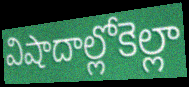
విషాదాల్లోకెల్లా